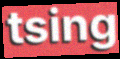
tsing